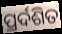
ପ୍ରର୍ଦଶିତ